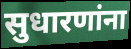
सुधारणांना